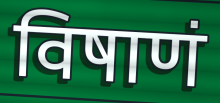
विषाणं